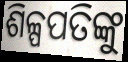
ଶିଳ୍ପପତିଙ୍କୁ